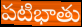
పటిభాతు